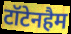
टॉटेनहैम